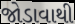
જોડાવાથી